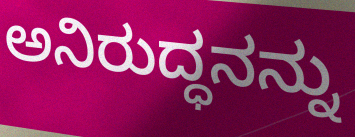
ಅನಿರುದ್ಧನನ್ನು